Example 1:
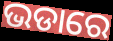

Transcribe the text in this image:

ଭଡାରେ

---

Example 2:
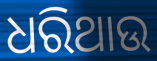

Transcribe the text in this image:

ଧରିଥାଉ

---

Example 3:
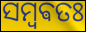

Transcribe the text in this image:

ସମ୍ବଵତଃ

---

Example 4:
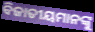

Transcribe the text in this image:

ବିଜାତୀୟମାନଙ୍କୁ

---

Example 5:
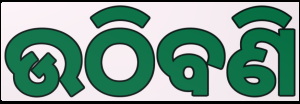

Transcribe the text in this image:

ଉଠିବଣି